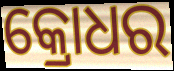
କ୍ରୋଧର